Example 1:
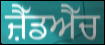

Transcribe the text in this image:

ਜ਼ੈੱਡਐੱਚ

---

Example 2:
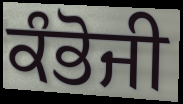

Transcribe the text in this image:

ਕੰਭੋਜੀ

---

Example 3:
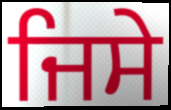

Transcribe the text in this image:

ਜਿਸੇ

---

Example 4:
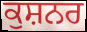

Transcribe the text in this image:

ਕੁਸ਼ਨਰ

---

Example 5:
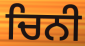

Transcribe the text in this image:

ਚਿਨੀ